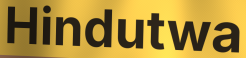
Hindutwa